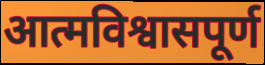
आत्मविश्वासपूर्ण